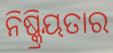
ନିଷ୍କ୍ରିୟତାର